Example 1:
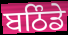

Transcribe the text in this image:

ਬਠਿੰਡੇ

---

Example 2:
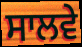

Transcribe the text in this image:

ਸਾਲਵੇ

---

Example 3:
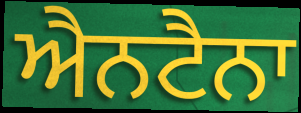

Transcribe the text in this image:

ਐਨਟੈਨਾ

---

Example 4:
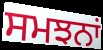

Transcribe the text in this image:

ਸਮਝਨਾਂ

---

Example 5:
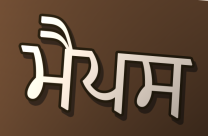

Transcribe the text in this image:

ਮੈਪਸ